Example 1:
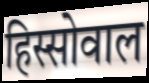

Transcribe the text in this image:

हिस्सोवाल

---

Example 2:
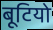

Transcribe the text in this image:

बूटियो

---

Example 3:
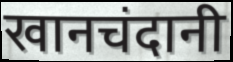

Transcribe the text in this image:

खानचंदानी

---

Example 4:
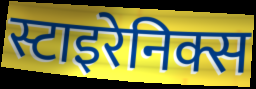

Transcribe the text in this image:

स्टाइरेनिक्स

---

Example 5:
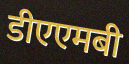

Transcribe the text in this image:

डीएएमबी